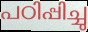
പഠിപ്പിച്ചു